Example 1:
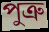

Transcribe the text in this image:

পুত্রু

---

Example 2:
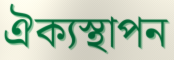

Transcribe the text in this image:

ঐক্যস্থাপন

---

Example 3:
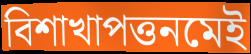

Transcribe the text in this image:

বিশাখাপত্তনমেই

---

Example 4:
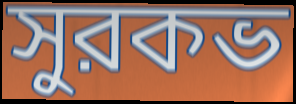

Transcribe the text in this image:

সুরকভ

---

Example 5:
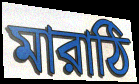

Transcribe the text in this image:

মারাঠি